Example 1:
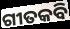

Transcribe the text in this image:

ଗୀତକବି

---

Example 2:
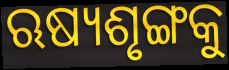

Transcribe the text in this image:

ଋଷ୍ୟଶୃଙ୍ଗକୁ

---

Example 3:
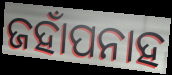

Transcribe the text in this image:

ଜହାଁପନାହ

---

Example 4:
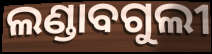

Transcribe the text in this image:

ଲଣ୍ଡାବଗୁଲୀ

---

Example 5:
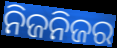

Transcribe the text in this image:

ନିଜନିଜର